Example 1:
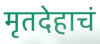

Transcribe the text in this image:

मृतदेहाचं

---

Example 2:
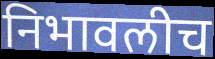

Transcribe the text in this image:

निभावलीच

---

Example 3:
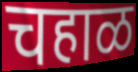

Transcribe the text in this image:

चहाळ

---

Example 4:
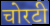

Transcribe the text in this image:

चोरटी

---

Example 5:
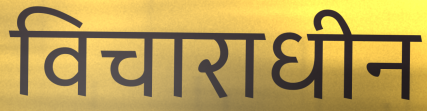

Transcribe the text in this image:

विचाराधीन